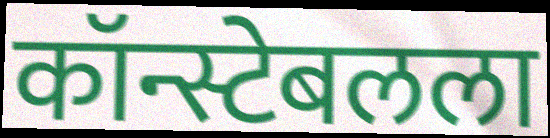
कॉन्स्टेबलला